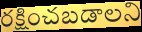
రక్షించబడాలని